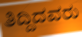
ತಿದ್ದಿದವರು